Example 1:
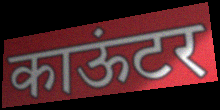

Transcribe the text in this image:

काऊंटर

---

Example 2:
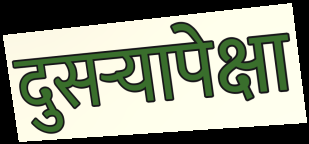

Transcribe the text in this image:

दुसऱ्यापेक्षा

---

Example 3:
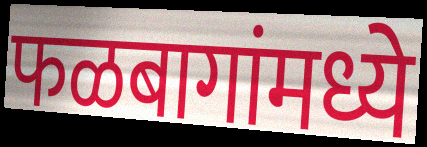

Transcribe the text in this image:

फळबागांमध्ये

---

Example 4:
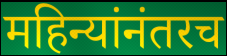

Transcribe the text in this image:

महिन्यांनंतरच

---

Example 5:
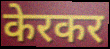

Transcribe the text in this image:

केरकर